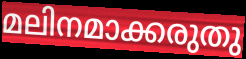
മലിനമാക്കരുതു